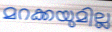
മറക്കയുമില്ല